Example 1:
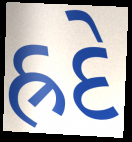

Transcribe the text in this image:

હ્રદે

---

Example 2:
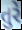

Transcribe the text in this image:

તુરે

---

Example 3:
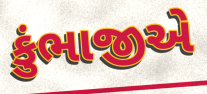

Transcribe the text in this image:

કુંભાજીએ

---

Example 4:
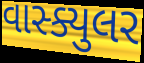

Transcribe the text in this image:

વાસ્ક્યુલર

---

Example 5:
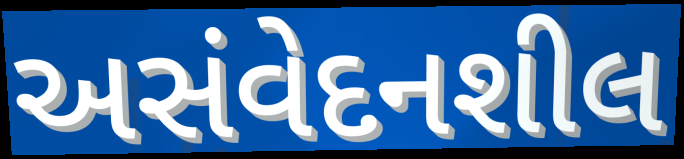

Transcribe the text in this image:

અસંવેદનશીલ